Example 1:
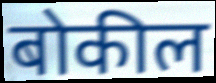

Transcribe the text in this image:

बोकील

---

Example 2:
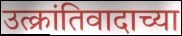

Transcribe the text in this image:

उत्क्रांतिवादाच्या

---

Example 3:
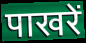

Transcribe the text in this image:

पाखरें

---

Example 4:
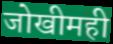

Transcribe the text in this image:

जोखीमही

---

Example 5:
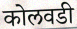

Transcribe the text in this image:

कोलवडी